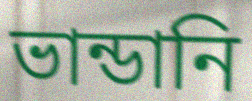
ভান্ডানি